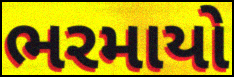
ભરમાયો